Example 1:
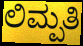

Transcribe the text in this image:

ಲಿಮ್ಪತಿ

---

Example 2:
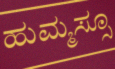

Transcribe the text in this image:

ಹುಮ್ಮಸ್ಸೂ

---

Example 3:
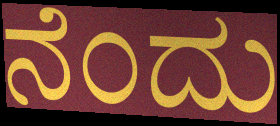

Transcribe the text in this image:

ನೆಂದು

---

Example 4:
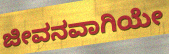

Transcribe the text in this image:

ಜೀವನವಾಗಿಯೇ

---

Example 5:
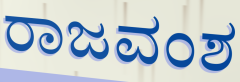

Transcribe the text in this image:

ರಾಜವಂಶ